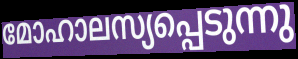
മോഹാലസ്യപ്പെടുന്നു